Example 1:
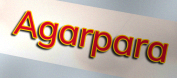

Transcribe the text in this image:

Agarpara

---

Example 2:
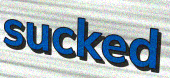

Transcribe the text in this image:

sucked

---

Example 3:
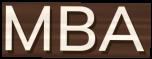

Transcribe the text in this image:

MBA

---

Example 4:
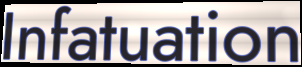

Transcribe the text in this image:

Infatuation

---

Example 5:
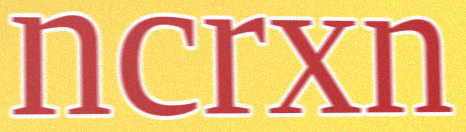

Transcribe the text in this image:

ncrxn